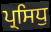
ਪ੍ਰਸਿਧੁ